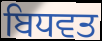
ਬਿਧਵਤ